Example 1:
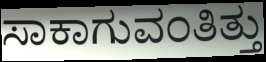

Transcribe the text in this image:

ಸಾಕಾಗುವಂತಿತ್ತು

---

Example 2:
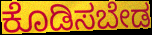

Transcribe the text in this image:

ಕೊಡಿಸಬೇಡ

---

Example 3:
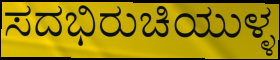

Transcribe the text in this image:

ಸದಭಿರುಚಿಯುಳ್ಳ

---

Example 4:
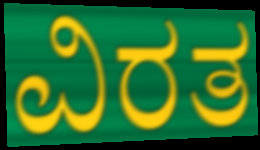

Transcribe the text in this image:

ವಿರತ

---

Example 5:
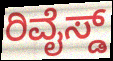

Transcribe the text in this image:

ರಿವೈಸ್ಡ್